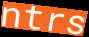
ntrs